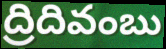
ద్రిదివంబు